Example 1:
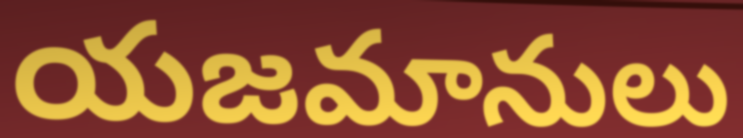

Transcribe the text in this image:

యజమానులు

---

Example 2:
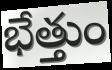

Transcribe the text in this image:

భేత్తుం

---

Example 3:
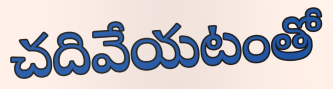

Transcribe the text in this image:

చదివేయటంతో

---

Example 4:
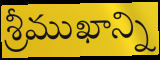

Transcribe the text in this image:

శ్రీముఖాన్ని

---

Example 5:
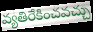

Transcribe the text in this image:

వ్యతిరేకించవచ్చు